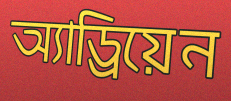
অ্যাড্রিয়েন